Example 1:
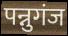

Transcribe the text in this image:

पन्नुगंज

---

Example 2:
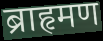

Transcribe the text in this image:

ब्राहृमण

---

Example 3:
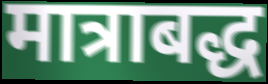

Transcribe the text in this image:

मात्राबद्ध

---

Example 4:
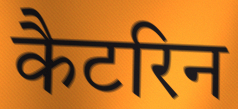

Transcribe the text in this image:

कैटरिन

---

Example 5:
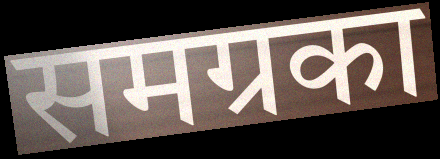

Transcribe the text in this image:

समग्रका